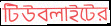
টিউবলাইটের